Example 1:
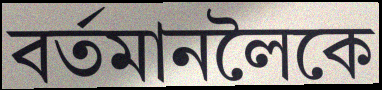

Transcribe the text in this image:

বৰ্তমানলৈকে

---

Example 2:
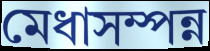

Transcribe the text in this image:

মেধাসম্পন্ন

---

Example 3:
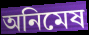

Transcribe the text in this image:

অনিমেষ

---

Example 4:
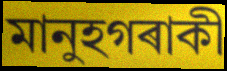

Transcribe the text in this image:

মানুহগৰাকী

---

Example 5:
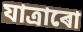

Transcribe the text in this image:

যাত্ৰাৰো